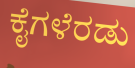
ಕೈಗಳೆರಡು